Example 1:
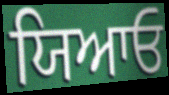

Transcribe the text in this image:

ਯਿਆਓ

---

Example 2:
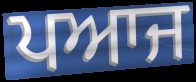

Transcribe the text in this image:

ਪਆਜ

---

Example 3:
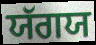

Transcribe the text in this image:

ਯੱਗਯ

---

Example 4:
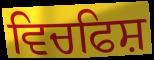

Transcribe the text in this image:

ਵਿਚਫਿਸ਼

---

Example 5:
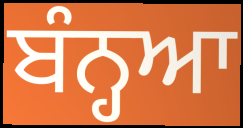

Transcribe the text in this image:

ਬੰਨ੍ਹਆ